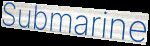
Submarine